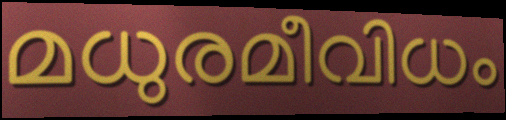
മധുരമീവിധം